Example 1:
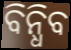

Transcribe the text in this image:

ବିନ୍ଧିବ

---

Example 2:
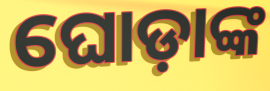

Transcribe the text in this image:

ଘୋଡ଼ାଙ୍କ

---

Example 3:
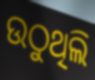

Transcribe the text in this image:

ଉଠୁଥିଲି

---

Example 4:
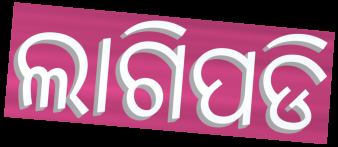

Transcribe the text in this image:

ଲାଗିପଡି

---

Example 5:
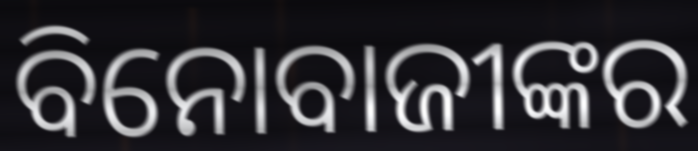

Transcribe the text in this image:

ବିନୋବାଜୀଙ୍କର